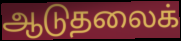
ஆடுதலைக்